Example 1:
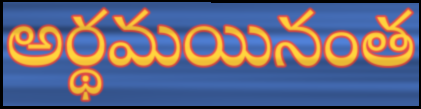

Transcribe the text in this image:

అర్థమయినంత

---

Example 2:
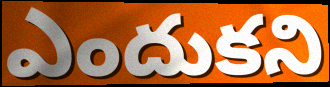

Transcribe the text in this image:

ఎందుకని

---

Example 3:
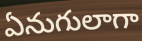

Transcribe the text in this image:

ఏనుగులాగా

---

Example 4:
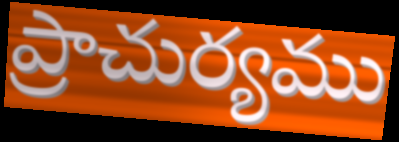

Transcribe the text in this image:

ప్రాచుర్యము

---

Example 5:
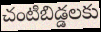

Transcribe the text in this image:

చంటిబిడ్డలకు